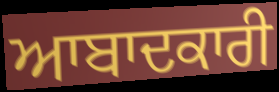
ਆਬਾਦਕਾਰੀ